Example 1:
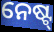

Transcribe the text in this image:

ନେଷ୍ଟ୍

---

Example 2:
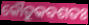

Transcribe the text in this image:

କୌତୁକବଶତଃ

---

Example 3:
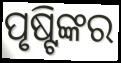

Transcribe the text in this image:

ପୃଷ୍ଟିଙ୍କର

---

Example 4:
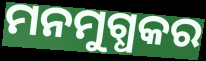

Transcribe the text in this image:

ମନମୁଗ୍ଧକର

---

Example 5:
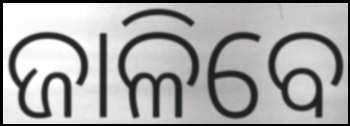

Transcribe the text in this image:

ଜାଳିବେ